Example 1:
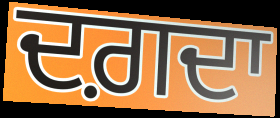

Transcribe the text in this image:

ਦਗ਼ਦਾ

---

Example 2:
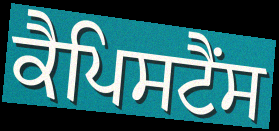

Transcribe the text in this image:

ਕੈਪਿਸਟੈਂਸ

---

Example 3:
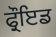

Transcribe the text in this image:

ਫ੍ਰੌਇਡ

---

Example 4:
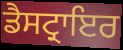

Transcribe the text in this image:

ਡੈਸਟ੍ਰਾਇਰ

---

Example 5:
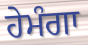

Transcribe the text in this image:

ਹੇਮੰਗਾ